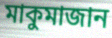
মাকুমাজান